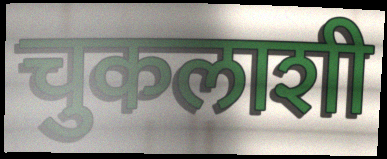
चुकलाशी